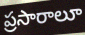
ప్రసారాలూ